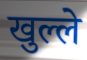
खुल्ले